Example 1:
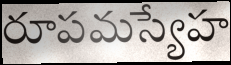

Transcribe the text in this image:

రూపమస్యేహ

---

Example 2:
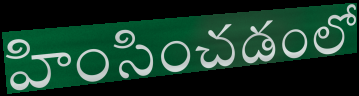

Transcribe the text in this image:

హింసించడంలో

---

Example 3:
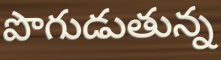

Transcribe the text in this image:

పొగుడుతున్న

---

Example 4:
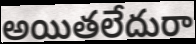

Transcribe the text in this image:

అయితలేదురా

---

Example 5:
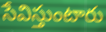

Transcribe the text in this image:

సేవిస్తుంటారు